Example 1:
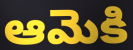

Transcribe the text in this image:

ఆమెకి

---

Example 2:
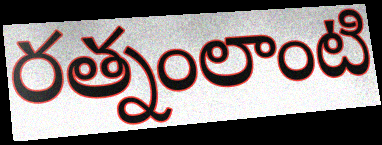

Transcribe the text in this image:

రత్నంలాంటి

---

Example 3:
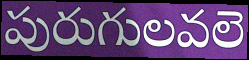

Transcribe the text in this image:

పురుగులవలె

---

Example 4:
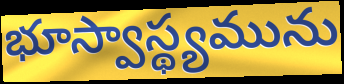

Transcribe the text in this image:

భూస్వాస్థ్యమును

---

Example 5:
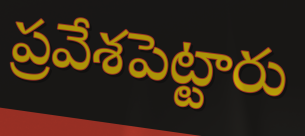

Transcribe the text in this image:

ప్రవేశపెట్టారు